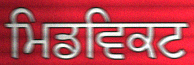
ਮਿਡਵਿਕਟ